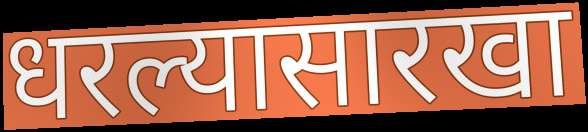
धरल्यासारखा